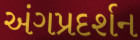
અંગપ્રદર્શન